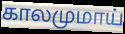
காலமுமாய்